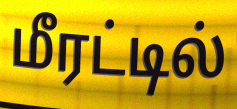
மீரட்டில்